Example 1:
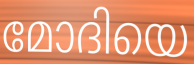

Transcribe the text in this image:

മോദിയെ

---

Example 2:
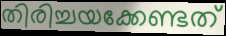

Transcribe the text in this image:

തിരിച്ചയക്കേണ്ടത്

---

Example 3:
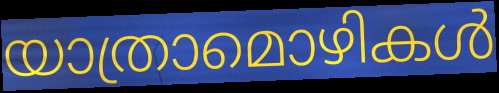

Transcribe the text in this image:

യാത്രാമൊഴികൾ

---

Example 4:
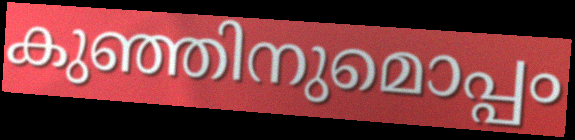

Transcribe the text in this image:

കുഞ്ഞിനുമൊപ്പം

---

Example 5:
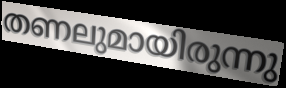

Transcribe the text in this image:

തണലുമായിരുന്നു